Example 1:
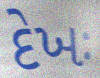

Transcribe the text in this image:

દેખઃ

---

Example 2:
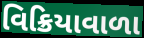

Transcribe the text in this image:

વિક્રિયાવાળા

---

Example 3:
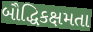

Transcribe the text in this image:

બૌદ્ધિકક્ષમતા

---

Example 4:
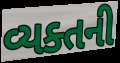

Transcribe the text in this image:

વ્યક્તની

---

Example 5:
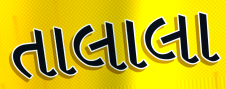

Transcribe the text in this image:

તાલાલા